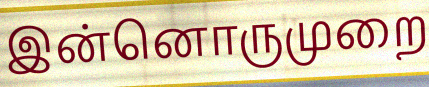
இன்னொருமுறை